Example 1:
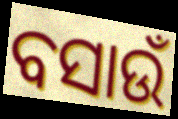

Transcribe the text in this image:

ବସାଉଁ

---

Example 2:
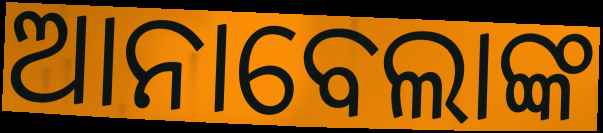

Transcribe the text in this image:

ଆନାବେଲାଙ୍କ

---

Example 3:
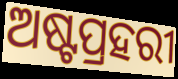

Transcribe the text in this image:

ଅଷ୍ଟପ୍ରହରୀ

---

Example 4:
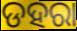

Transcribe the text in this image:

ଡହରା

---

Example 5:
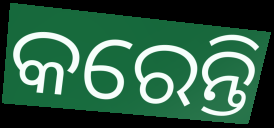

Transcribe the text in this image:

କରେନ୍ତି